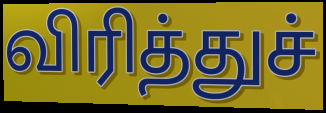
விரித்துச்